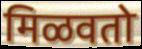
मिळवतो